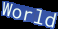
World